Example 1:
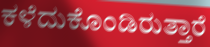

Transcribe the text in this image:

ಕಳೆದುಕೊಂಡಿರುತ್ತಾರೆ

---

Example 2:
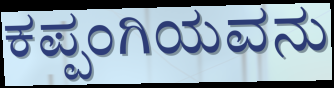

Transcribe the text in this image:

ಕಪ್ಪಂಗಿಯವನು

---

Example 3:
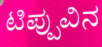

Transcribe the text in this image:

ಟಿಪ್ಪುವಿನ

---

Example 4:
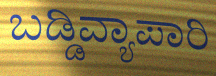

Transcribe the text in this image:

ಬಡ್ಡಿವ್ಯಾಪಾರಿ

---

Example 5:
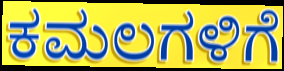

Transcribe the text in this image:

ಕಮಲಗಳಿಗೆ